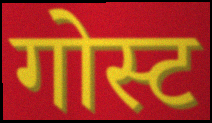
गोस्ट